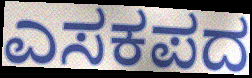
ಎಸಕಪದ